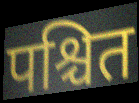
पश्चित